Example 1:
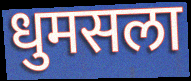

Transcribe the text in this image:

धुमसला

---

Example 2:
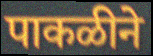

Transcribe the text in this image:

पाकळीने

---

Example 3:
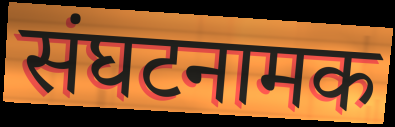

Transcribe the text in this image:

संघटनामक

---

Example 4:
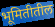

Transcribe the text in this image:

भूमितीतील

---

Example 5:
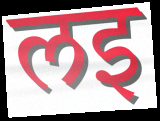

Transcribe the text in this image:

लइ